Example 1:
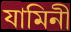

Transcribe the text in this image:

যামিনী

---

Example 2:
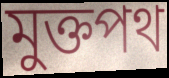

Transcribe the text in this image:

মুক্তপথ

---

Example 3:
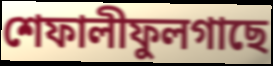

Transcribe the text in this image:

শেফালীফুলগাছে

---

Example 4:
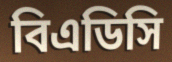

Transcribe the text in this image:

বিএডিসি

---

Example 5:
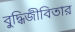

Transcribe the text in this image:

বুদ্ধিজীবিতার